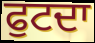
ਫੁਟਦਾ